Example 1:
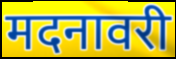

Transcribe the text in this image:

मदनावरी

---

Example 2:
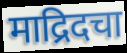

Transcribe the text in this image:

माद्रिदचा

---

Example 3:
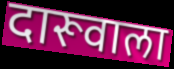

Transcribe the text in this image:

दारूवाला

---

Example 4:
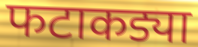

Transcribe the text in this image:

फटाकड्या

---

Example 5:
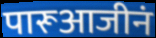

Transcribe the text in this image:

पारूआजीनं